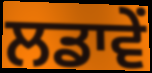
ਲਡਾਵੇਂ